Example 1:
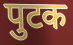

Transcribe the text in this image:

पुटक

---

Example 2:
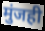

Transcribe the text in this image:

मुंजही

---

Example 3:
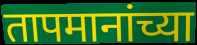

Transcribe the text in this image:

तापमानांच्या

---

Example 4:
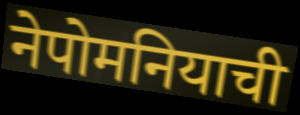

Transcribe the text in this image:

नेपोमनियाची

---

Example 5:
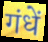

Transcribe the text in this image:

गंधें